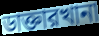
ডাক্তারখানা